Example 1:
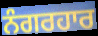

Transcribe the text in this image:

ਨੰਗਰਹਾਰ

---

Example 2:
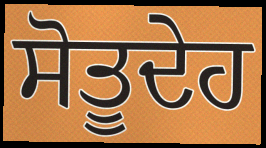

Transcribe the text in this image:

ਸੋਤੂਦੇਹ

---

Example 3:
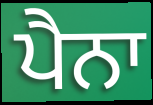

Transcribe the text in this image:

ਪੈਨਾ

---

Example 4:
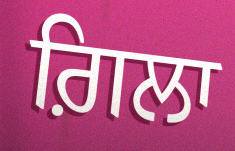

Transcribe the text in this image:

ਗ਼ਿਲਾ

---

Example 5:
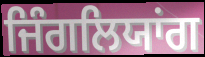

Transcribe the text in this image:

ਜਿੰਗਲਿਯਾਂਗ